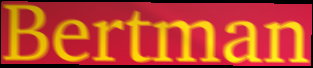
Bertman